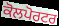
ਕੋਲਪੋਰਟਰ